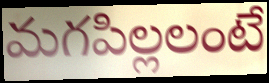
మగపిల్లలంటే